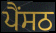
ਪੈਂਸਠ